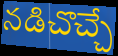
నడిచొచ్చే